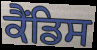
ਕੈਂਡਿਸ